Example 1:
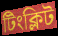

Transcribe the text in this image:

টিংক্লিট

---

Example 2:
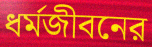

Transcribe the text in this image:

ধর্মজীবনের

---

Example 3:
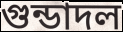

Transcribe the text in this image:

গুন্ডাদল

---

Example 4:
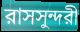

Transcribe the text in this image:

রাসসুন্দরী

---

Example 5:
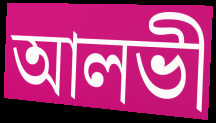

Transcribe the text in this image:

আলভী